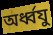
অর্ধ্বযু